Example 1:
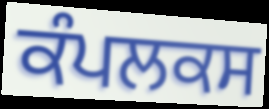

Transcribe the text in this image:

ਕੰਪਲਕਸ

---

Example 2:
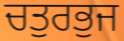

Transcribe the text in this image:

ਚਤੁਰਭੁਜ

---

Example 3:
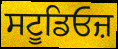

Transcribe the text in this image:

ਸਟੂਡਿਓਜ਼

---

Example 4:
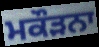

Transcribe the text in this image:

ਮਕੌੜਨਾ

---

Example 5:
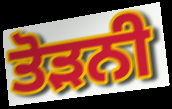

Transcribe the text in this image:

ਤੋੜਨੀ